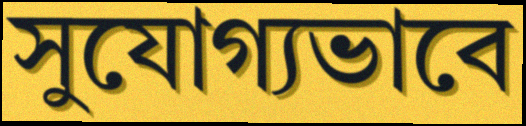
সুযোগ্যভাবে